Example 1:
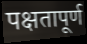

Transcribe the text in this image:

पक्षतापूर्ण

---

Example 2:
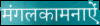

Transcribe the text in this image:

मंगलकामनाऐं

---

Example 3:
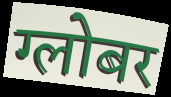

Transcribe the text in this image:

ग्लोबर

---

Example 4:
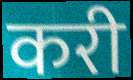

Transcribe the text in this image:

करी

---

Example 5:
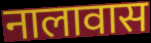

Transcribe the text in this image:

नालावास